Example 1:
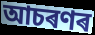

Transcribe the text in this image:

আচৰণৰ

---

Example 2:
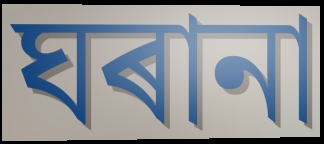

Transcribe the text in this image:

ঘৰানা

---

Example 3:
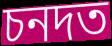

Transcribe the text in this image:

চনদত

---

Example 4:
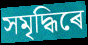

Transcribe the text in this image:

সমৃদ্ধিৰে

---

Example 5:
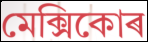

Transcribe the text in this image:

মেক্সিকোৰ